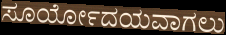
ಸೂರ್ಯೋದಯವಾಗಲು